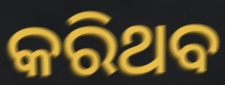
କରିଥବ